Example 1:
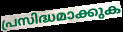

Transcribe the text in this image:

പ്രസിദ്ധമാക്കുക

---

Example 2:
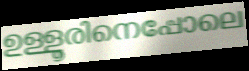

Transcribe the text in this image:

ഉള്ളൂരിനെപ്പോലെ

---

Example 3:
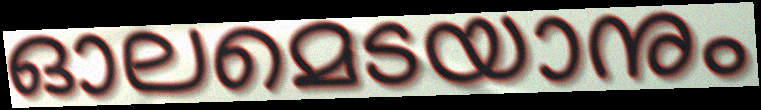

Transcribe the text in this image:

ഓലമെടയാനും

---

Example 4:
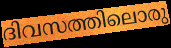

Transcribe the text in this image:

ദിവസത്തിലൊരു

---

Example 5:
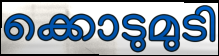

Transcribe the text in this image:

ക്കൊടുമുടി